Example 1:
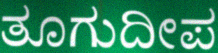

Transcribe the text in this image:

ತೂಗುದೀಪ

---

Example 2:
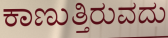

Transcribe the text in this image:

ಕಾಣುತ್ತಿರುವದು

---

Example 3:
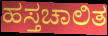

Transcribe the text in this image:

ಹಸ್ತಚಾಲಿತ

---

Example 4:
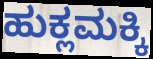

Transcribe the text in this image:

ಹುಕ್ಲಮಕ್ಕಿ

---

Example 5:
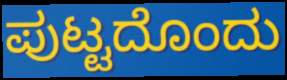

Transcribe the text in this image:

ಪುಟ್ಟದೊಂದು